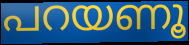
പറയണൂ